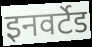
इनवर्टेड